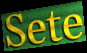
Sete